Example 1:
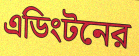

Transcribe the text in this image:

এডিংটনের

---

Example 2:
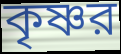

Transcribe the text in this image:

কৃষ্ণর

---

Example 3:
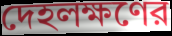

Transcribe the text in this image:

দেহলক্ষণের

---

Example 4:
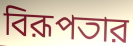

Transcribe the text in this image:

বিরূপতার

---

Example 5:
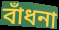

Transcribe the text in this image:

বাঁধনা